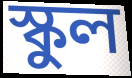
স্কুল